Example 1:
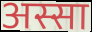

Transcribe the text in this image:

अस्सा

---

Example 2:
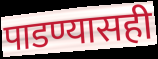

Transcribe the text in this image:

पाडण्यासही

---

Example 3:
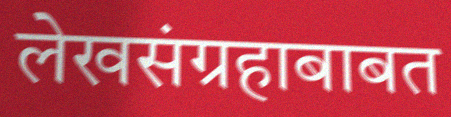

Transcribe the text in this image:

लेखसंग्रहाबाबत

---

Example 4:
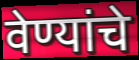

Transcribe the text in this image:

वेण्यांचे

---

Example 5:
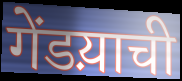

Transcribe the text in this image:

गेंडय़ाची